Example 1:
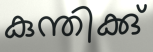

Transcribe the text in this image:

കുന്തിക്കു്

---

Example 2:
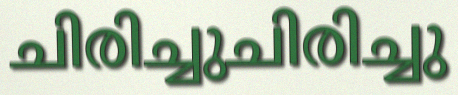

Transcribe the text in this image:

ചിരിച്ചുചിരിച്ചു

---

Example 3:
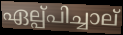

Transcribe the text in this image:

ഏല്പ്പിച്ചാല്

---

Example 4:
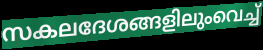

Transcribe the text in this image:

സകലദേശങ്ങളിലുംവെച്ച്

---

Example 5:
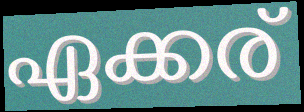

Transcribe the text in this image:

ഏക്കര്